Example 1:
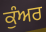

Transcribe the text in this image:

ਕੁੰਅਰ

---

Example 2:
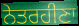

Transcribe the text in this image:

ਨੇਤਰਹੀਣਾ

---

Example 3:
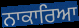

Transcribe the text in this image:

ਨਾਕਾਰਿਆ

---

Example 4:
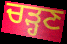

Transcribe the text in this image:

ਚੜ੍ਹਣ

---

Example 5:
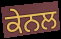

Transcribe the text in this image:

ਕੇਨਲ